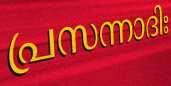
പ്രസന്നാദിഃ